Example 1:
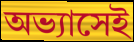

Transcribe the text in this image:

অভ্যাসেই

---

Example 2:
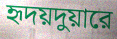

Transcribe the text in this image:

হৃদয়দুয়ারে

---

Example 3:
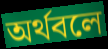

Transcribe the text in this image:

অর্থবলে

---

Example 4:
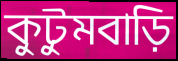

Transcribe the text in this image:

কুটুমবাড়ি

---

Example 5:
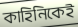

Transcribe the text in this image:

কাহিনিকেই